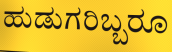
ಹುಡುಗರಿಬ್ಬರೂ